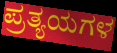
ಪ್ರತ್ಯಯಗಳ